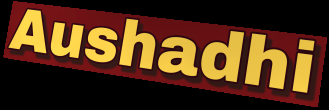
Aushadhi